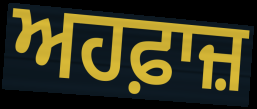
ਅਹਫ਼ਾਜ਼